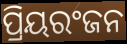
ପ୍ରିୟରଂଜନ